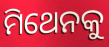
ମିଥେନକୁ